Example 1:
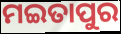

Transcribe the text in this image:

ମଇତାପୁର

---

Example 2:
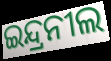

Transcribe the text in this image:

ଇନ୍ଦ୍ରନୀଲ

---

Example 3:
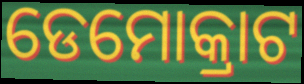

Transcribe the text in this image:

ଡେମୋକ୍ରାଟ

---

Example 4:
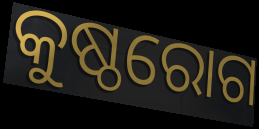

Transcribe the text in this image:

କୁଷ୍ଠରୋଗ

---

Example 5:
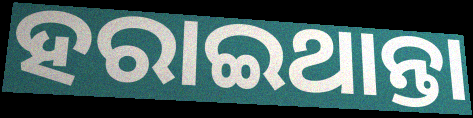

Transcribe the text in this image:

ହରାଇଥାନ୍ତା